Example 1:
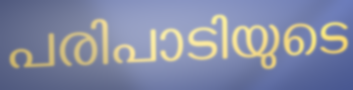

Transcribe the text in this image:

പരിപാടിയുടെ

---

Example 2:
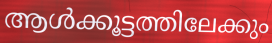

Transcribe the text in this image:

ആൾക്കൂട്ടത്തിലേക്കും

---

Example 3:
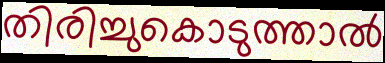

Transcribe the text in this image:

തിരിച്ചുകൊടുത്താൽ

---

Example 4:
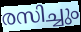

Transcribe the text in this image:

രസിച്ചും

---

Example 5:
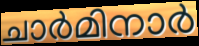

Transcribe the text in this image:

ചാർമിനാർ